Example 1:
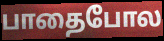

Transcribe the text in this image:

பாதைபோல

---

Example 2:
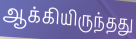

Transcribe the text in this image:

ஆக்கியிருந்தது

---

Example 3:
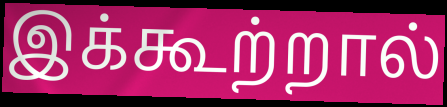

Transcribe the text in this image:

இக்கூற்றால்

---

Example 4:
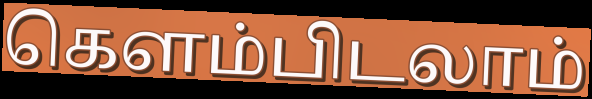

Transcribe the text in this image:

கெளம்பிடலாம்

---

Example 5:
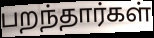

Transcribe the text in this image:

பறந்தார்கள்